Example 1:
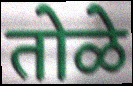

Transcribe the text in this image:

तोळे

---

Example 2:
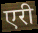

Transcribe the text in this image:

एरी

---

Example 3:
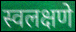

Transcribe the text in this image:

स्वलक्षणे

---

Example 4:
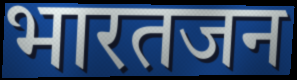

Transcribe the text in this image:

भारतजन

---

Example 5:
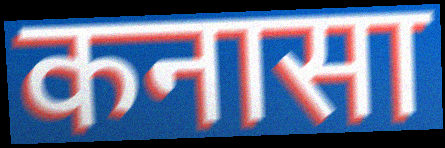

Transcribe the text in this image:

कनासा